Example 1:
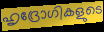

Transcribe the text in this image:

ഹൃദ്രോഗികളുടെ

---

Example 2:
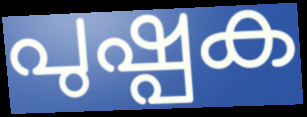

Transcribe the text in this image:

പുഷ്പക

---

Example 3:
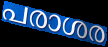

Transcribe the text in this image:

പരാശര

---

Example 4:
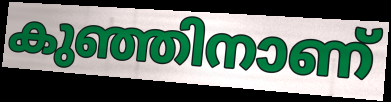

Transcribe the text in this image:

കുഞ്ഞിനാണ്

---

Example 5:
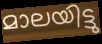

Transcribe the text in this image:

മാലയിട്ടു